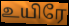
உயிரே